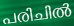
പരിചിൽ